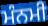
ਮੰਨਮੀ